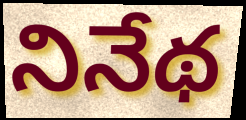
నినేథ